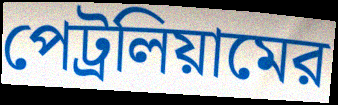
পেট্রলিয়ামের